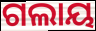
ଗଲାୟ